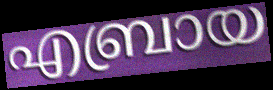
എബ്രായ